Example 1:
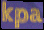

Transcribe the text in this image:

kpa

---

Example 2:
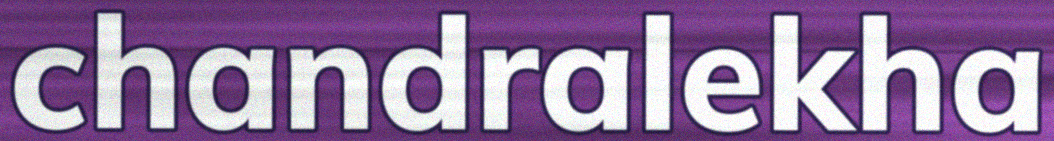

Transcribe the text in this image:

chandralekha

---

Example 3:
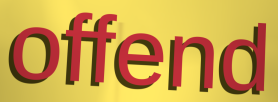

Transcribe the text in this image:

offend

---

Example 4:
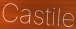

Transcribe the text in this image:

Castile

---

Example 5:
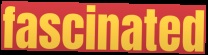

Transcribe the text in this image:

fascinated